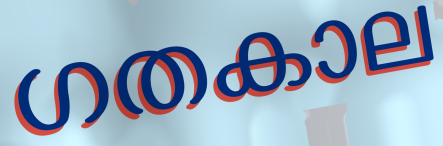
ഗതകാല